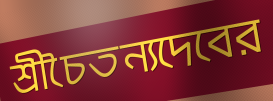
শ্রীচৈতন্যদেবের